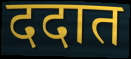
ददात